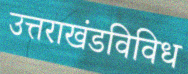
उत्तराखंडविविध